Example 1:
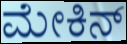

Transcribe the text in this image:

ಮೇಕಿನ್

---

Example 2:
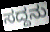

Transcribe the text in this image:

ಸದ್ದನು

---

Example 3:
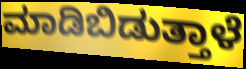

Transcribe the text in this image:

ಮಾಡಿಬಿಡುತ್ತಾಳೆ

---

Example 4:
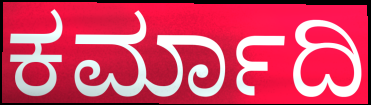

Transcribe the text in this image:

ಕರ್ಮಾದಿ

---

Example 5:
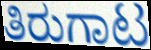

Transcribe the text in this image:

ತಿರುಗಾಟ